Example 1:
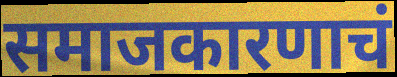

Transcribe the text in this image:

समाजकारणाचं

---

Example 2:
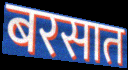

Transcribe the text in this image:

बरसात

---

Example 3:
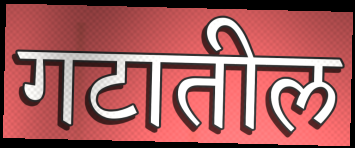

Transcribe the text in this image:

गटातील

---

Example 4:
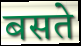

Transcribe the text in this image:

बसते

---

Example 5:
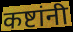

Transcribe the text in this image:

कष्टांनी